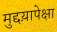
मुद्दय़ापेक्षा